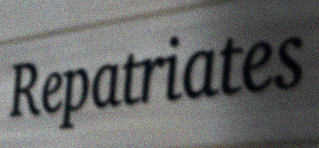
Repatriates